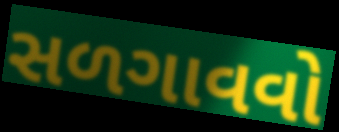
સળગાવવો